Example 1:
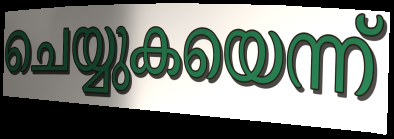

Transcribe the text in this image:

ചെയ്യുകയെന്ന്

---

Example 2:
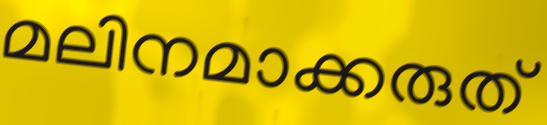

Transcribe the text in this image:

മലിനമാക്കരുത്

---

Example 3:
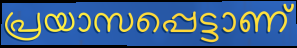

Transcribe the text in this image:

പ്രയാസപ്പെട്ടാണ്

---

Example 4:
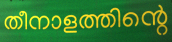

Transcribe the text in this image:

തീനാളത്തിന്റെ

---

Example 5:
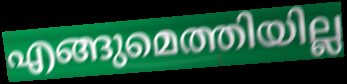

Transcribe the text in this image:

എങ്ങുമെത്തിയില്ല